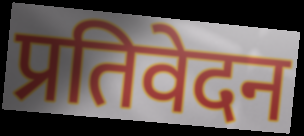
प्रतिवेदन